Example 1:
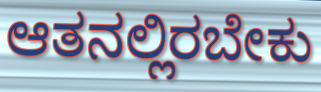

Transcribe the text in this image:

ಆತನಲ್ಲಿರಬೇಕು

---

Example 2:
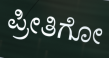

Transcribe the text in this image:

ಪ್ರೀತಿಗೋ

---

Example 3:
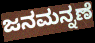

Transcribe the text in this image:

ಜನಮನ್ನಣೆ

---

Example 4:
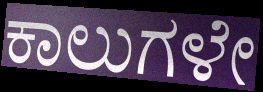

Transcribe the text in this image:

ಕಾಲುಗಳೇ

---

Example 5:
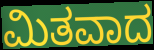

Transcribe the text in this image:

ಮಿತವಾದ